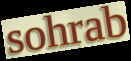
sohrab